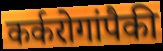
कर्करोगांपैकी